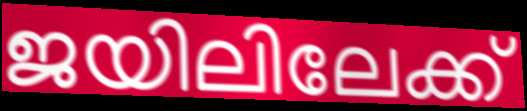
ജയിലിലേക്ക്